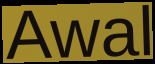
Awal